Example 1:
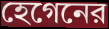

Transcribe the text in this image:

হেগেনের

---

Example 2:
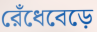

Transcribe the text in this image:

রেঁধেবেড়ে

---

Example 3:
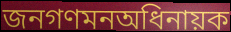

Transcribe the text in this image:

জনগণমনঅধিনায়ক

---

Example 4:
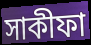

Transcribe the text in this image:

সাকীফা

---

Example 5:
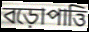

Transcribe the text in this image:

বড়োপাত্তি